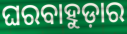
ଘରବାହୁଡ଼ାର